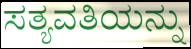
ಸತ್ಯವತಿಯನ್ನು